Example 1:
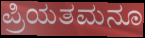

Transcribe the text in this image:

ಪ್ರಿಯತಮನೂ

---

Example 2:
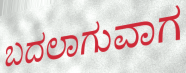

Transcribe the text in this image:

ಬದಲಾಗುವಾಗ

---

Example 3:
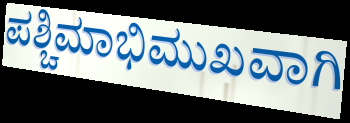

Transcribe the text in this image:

ಪಶ್ಚಿಮಾಭಿಮುಖವಾಗಿ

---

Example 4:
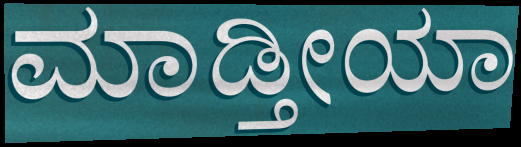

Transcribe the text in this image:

ಮಾಡ್ತೀಯಾ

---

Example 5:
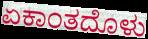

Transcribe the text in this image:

ಏಕಾಂತದೊಳು